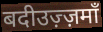
बदीउज़्ज़माँ